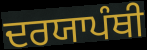
ਦਰਯਾਪੰਥੀ